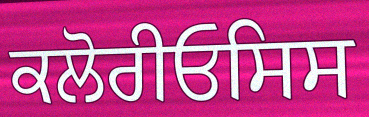
ਕਲੋਰੀਓਸਿਸ